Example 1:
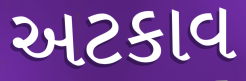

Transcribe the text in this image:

અટકાવ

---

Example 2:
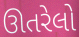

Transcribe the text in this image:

ઊતરેલો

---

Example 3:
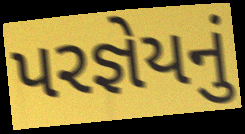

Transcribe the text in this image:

પરજ્ઞેયનું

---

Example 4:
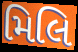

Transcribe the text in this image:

મિલિ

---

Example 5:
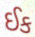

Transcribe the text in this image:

ઈક